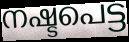
നഷ്ടപെട്ട